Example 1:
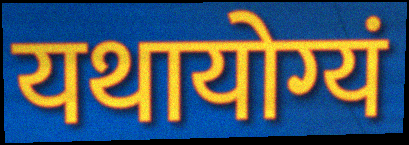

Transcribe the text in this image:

यथायोग्यं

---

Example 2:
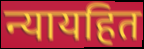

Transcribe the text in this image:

न्यायहित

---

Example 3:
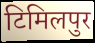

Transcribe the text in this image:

टिमिलपुर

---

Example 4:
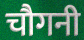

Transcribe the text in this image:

चौगनी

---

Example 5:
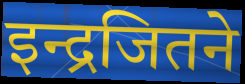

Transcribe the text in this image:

इन्द्रजितने